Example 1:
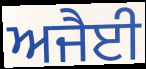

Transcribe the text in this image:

ਅਜੈਈ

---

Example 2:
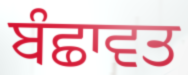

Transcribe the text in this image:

ਬੰਛਾਵਤ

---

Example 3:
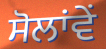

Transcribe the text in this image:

ਸੋਲਾਂਵੇਂ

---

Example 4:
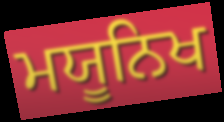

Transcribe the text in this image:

ਮਯੂਨਿਖ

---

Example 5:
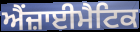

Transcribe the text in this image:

ਐਂਜ਼ਾਈਮੈਟਿਕ